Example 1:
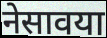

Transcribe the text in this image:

नेसावया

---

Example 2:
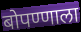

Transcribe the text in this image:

बोपण्णाला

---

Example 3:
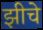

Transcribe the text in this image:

झीचे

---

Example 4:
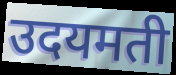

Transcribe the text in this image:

उदयमती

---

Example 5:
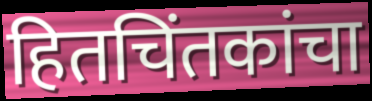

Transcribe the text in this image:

हितचिंतकांचा